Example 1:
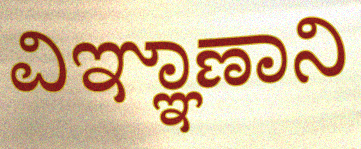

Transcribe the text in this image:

ವಿಞ್ಞಾಣಾನಿ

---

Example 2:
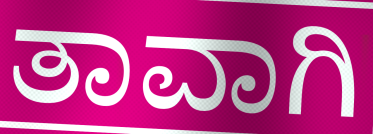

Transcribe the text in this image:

ತಾವಾಗಿ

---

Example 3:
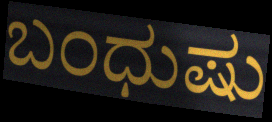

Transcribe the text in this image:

ಬಂಧುಷು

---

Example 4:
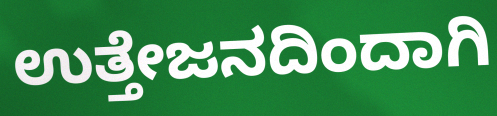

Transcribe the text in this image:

ಉತ್ತೇಜನದಿಂದಾಗಿ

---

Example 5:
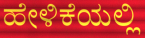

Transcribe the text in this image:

ಹೇಳಿಕೆಯಲ್ಲಿ